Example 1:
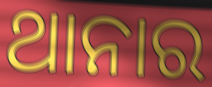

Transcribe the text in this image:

ଥାନାର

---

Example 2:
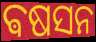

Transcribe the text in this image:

ଵଷସନ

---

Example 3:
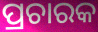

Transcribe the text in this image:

ପ୍ରଚାରକ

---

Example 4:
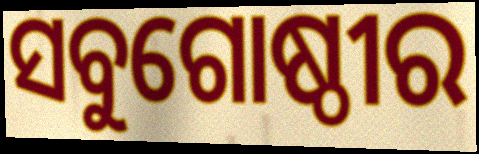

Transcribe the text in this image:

ସବୁଗୋଷ୍ଠୀର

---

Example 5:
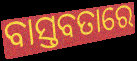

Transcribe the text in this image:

ବାସ୍ତବତାରେ